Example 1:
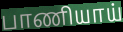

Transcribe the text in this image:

பாணியாய்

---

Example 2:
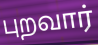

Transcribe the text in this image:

புறவார்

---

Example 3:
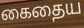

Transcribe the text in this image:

கைதைய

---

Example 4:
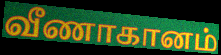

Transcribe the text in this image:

வீணாகானம்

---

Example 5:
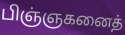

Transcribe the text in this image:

பிஞ்ஞகனைத்